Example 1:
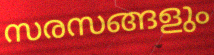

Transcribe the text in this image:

സരസങ്ങളും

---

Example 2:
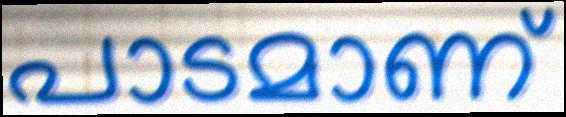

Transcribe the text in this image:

പാടമാണ്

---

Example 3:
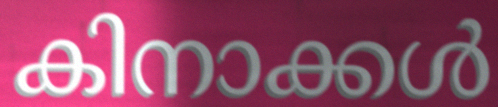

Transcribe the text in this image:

കിനാക്കൾ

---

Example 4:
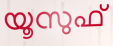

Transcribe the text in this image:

യൂസുഫ്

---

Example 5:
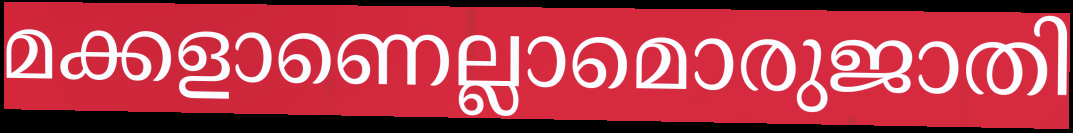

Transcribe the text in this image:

മക്കളാണെല്ലാമൊരുജാതി